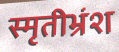
स्मृतीभ्रंश